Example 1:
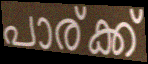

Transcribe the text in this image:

പാര്ക്ക്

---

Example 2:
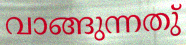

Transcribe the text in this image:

വാങ്ങുന്നതു്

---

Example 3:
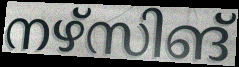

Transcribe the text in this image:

നഴ്സിങ്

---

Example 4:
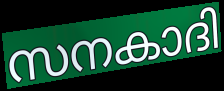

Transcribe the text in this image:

സനകാദി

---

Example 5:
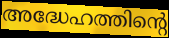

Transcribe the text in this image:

അദ്ധേഹത്തിന്റെ